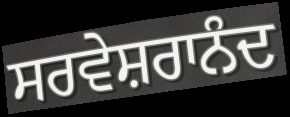
ਸਰਵੇਸ਼ਰਾਨੰਦ